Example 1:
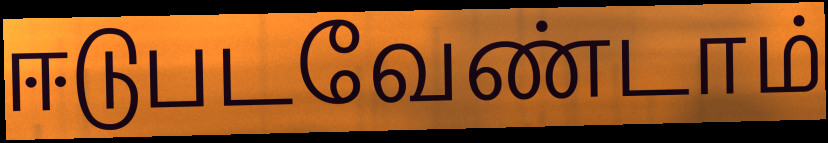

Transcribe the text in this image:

ஈடுபடவேண்டாம்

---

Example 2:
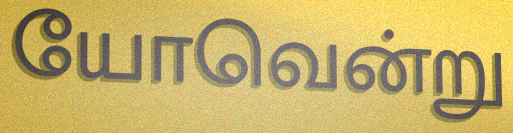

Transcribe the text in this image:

யோவென்று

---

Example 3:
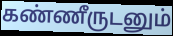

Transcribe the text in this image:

கண்ணீருடனும்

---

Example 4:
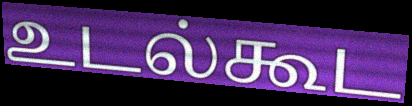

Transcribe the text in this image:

உடல்கூட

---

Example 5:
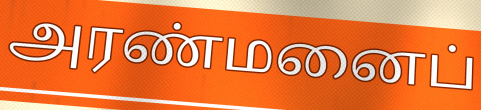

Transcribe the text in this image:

அரண்மனைப்